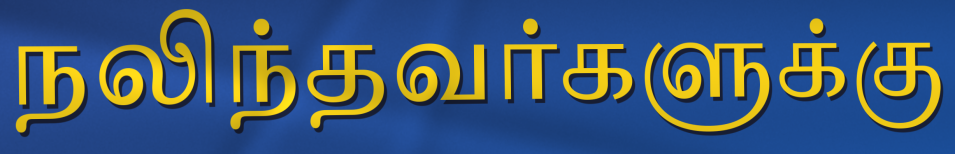
நலிந்தவர்களுக்கு